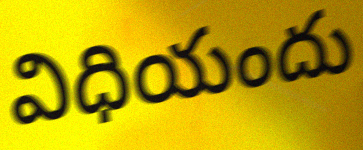
విధియందు